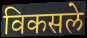
विकसले